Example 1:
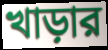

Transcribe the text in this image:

খাড়ার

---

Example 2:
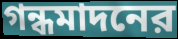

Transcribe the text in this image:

গন্ধমাদনের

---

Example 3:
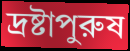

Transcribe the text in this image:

দ্রষ্টাপুরুষ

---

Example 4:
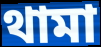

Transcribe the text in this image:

থামা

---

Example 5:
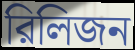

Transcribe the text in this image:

রিলিজন